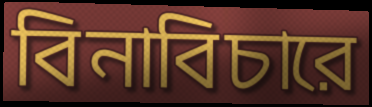
বিনাবিচারে